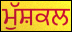
ਮੁੱਸ਼ਕਲ